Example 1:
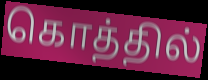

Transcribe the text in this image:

கொத்தில்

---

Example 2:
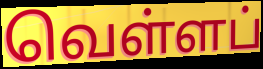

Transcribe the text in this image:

வெள்ளப்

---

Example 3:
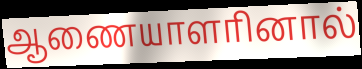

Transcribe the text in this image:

ஆணையாளரினால்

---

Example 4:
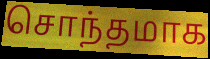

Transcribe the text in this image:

சொந்தமாக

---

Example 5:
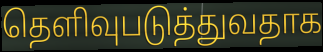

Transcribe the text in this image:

தெளிவுபடுத்துவதாக